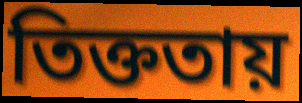
তিক্ততায়